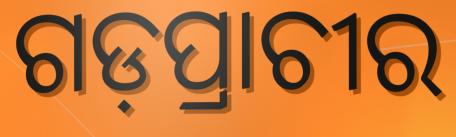
ଗଡ଼ପ୍ରାଚୀର